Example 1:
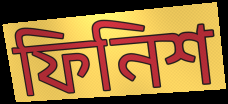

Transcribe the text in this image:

ফিনিশ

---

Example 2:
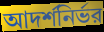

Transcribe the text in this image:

আদর্শনির্ভর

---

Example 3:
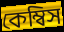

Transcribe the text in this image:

কেম্বিস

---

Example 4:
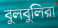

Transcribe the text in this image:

বুলবুলিরা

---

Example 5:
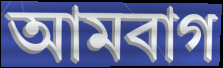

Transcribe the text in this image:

আমবাগ